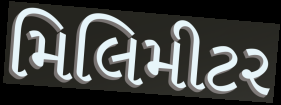
મિલિમીટર